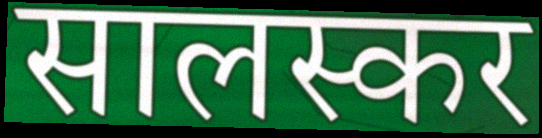
सालस्कर